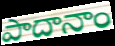
పాదానాం